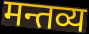
मन्तव्य